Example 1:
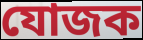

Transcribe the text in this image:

যোজক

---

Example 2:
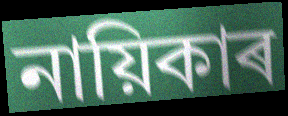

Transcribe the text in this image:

নায়িকাৰ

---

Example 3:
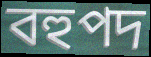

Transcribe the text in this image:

বহুপদ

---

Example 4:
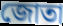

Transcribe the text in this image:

জোতা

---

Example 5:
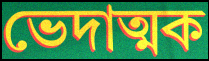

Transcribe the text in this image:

ভেদাত্মক